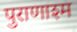
पुराणाश्म